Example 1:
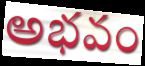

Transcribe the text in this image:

అభవం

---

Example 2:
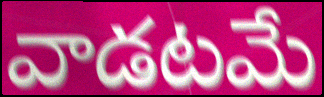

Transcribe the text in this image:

వాడటమే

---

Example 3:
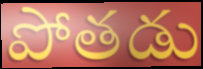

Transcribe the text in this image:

పోతడు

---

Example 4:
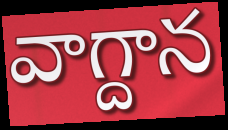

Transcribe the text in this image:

వాగ్దాన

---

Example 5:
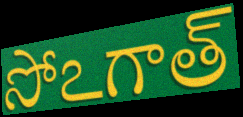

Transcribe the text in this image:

సోఽగాత్